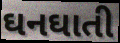
ઘનઘાતી